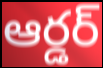
ఆర్డర్